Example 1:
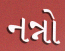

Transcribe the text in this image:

નન્નો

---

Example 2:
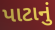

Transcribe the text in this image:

પાટાનું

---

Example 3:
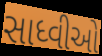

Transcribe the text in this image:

સાધ્વીઓ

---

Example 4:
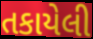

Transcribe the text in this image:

તકાયેલી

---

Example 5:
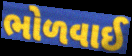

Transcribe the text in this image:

ભોળવાઈ